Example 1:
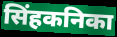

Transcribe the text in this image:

सिंहकनिका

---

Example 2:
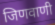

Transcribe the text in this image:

जिणवाणी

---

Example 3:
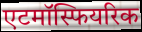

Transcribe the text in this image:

एटमॉस्फियरिक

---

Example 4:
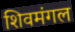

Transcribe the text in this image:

शिवमंगल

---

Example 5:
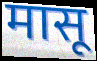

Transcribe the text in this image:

मासू